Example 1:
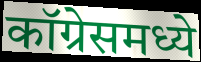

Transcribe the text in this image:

कॉग्रेसमध्ये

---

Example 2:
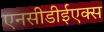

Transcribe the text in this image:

एनसीडीईएक्स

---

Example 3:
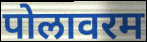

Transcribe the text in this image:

पोलावरम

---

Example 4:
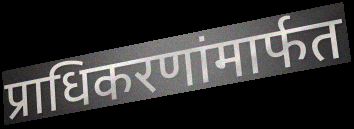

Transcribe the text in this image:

प्राधिकरणांमार्फत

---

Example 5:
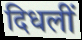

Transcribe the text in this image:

दिधलीं